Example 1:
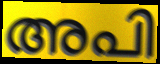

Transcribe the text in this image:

അപി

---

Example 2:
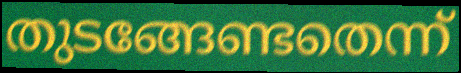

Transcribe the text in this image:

തുടങ്ങേണ്ടതെന്ന്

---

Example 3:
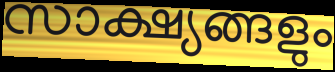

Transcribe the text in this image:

സാക്ഷ്യങ്ങളും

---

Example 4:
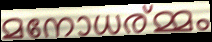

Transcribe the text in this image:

മനോധര്മ്മം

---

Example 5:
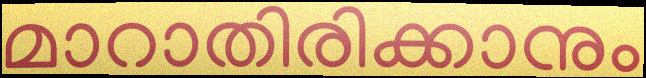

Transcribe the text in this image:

മാറാതിരിക്കാനും